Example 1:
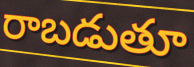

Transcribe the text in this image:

రాబడుతూ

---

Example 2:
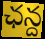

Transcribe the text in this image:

ఛన్ద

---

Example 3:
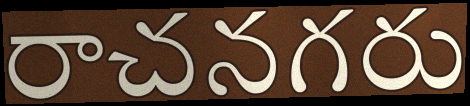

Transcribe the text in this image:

రాచనగరు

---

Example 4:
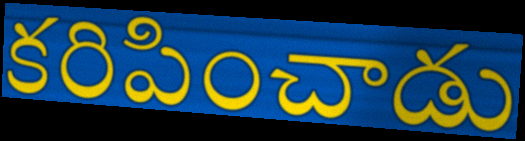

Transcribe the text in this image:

కరిపించాడు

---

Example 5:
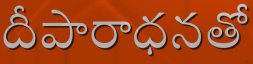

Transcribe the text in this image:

దీపారాధనతో